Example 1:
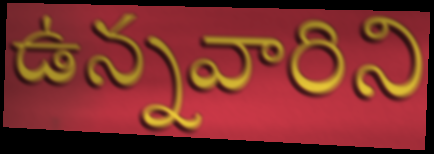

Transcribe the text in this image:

ఉన్నవారిని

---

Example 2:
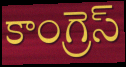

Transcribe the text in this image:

కాంగ్రెస్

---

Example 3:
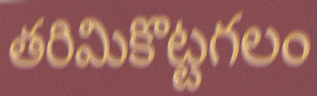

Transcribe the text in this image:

తరిమికొట్టగలం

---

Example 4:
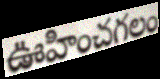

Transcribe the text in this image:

ఊహించగలం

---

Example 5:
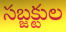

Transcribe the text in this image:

సబ్జక్టుల